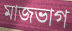
মাজভাগ